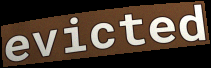
evicted